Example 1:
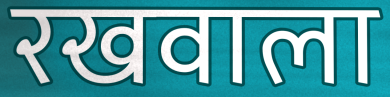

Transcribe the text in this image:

रखवाला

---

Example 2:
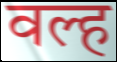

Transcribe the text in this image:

वल्ह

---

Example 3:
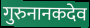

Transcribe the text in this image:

गुरुनानकदेव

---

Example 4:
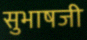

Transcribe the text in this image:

सुभाषजी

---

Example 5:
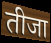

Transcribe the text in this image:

तीजा